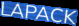
LAPACK